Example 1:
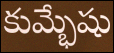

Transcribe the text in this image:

కుమ్భేషు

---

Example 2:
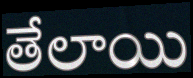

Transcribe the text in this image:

తేలాయి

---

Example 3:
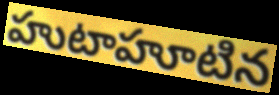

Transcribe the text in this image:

హుటాహూటిన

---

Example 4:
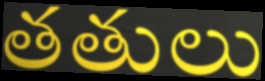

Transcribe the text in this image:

తతులు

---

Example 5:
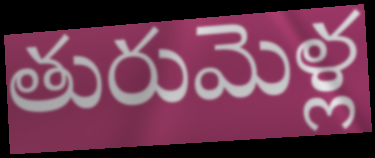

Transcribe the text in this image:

తురుమెళ్ల